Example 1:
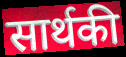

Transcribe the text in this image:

सार्थकी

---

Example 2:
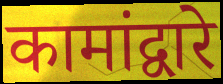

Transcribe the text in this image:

कामांद्वारे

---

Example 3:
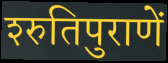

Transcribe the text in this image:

श्रुतिपुराणें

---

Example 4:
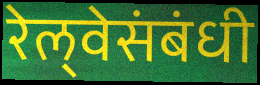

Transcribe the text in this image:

रेल्वेसंबंधी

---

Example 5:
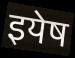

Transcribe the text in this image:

इयेष